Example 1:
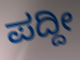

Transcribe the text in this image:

ಪದ್ದೀ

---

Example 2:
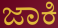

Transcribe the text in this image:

ಜಾಕಿ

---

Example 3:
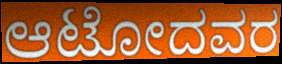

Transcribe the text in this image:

ಆಟೋದವರ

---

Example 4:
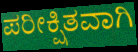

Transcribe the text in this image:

ಪರೀಕ್ಷಿತವಾಗಿ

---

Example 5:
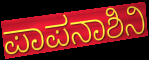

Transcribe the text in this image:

ಪಾಪನಾಶಿನಿ